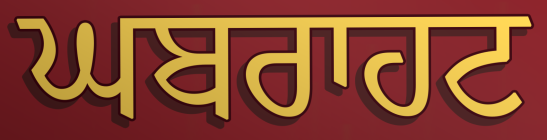
ਘਬਰਾਹਟ